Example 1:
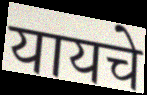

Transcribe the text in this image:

यायचे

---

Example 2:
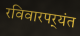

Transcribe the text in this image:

रविवारपर्यंत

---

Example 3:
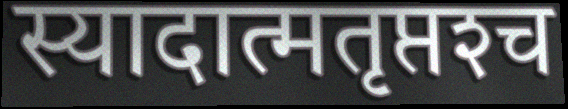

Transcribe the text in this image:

स्यादात्मतृप्तश्च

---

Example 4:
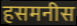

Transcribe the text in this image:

हसमनीस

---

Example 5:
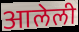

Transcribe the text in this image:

आलेली